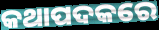
କଥାପଦକରେ